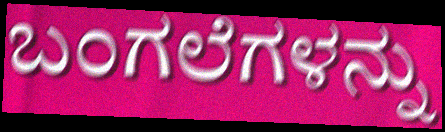
ಬಂಗಲೆಗಳನ್ನು